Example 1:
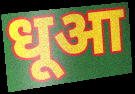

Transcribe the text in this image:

धूआ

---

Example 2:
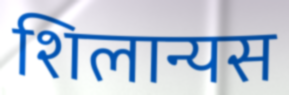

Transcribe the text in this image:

शिलान्यस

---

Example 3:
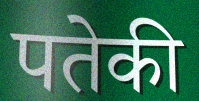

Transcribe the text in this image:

पतेकी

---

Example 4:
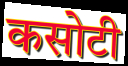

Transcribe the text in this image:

कसोटी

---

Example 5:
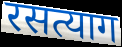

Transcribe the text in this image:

रसत्याग